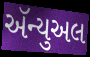
ઍન્યુઅલ